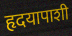
हृदयापाशी